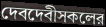
দেবদেবীসকলের